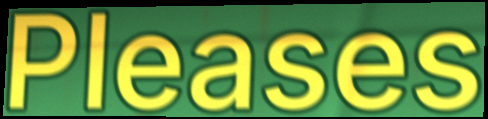
Pleases